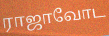
ராஜாவோட